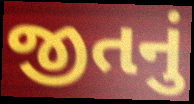
જીતનું